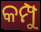
କମ୍ପୁ